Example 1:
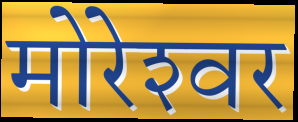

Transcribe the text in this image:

मोरेश्वर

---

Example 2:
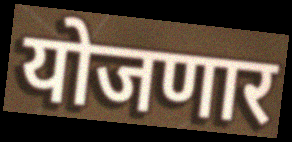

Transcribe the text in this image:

योजणार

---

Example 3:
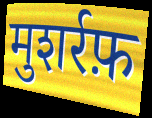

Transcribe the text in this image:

मुशर्रफ़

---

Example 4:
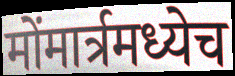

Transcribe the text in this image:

मोंमार्त्रमध्येच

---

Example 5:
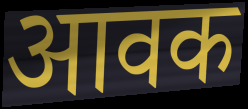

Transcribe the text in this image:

आवक